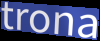
trona